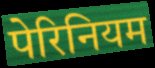
पेरिनियम